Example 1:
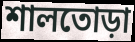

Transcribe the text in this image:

শালতোড়া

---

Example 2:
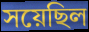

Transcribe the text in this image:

সয়েছিল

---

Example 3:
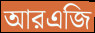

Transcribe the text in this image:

আরএজি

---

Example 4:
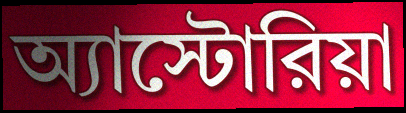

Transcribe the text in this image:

অ্যাস্টোরিয়া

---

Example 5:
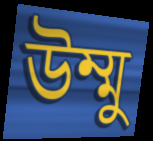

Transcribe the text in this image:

উম্মু